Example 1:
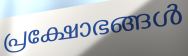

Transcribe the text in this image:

പ്രക്ഷോഭങ്ങൾ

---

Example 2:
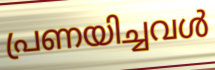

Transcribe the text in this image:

പ്രണയിച്ചവൾ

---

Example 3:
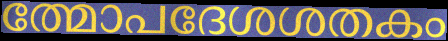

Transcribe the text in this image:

ത്മോപദേശശതകം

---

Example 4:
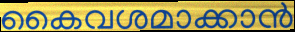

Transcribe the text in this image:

കൈവശമാക്കാൻ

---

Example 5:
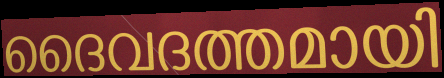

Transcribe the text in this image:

ദൈവദത്തമായി